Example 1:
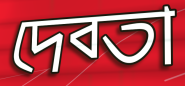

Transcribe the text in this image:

দেব্তা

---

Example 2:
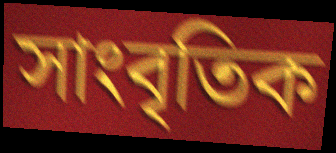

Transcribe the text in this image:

সাংবৃতিক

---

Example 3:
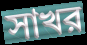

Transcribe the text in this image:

সাখর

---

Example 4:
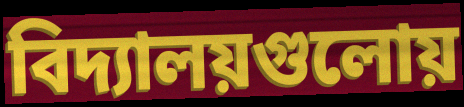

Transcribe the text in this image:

বিদ্যালয়গুলোয়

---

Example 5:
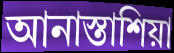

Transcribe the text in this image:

আনাস্তাশিয়া